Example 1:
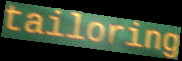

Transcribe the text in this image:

tailoring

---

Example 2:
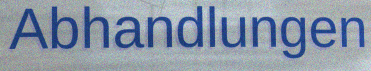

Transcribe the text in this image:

Abhandlungen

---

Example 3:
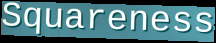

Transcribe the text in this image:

Squareness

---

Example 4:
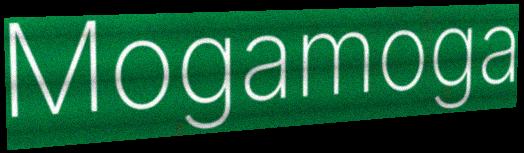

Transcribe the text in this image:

Mogamoga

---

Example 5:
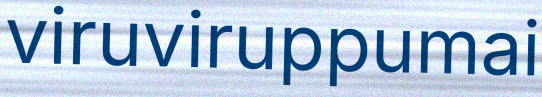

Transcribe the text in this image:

viruviruppumai